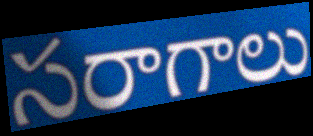
సరాగాలు